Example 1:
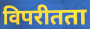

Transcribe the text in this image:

विपरीतता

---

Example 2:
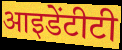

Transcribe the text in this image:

आइडेंटीटी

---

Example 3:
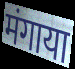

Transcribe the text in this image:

मंगाया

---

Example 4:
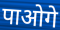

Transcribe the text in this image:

पाओगे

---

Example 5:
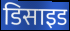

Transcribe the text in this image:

डिसाइड